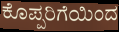
ಕೊಪ್ಪರಿಗೆಯಿಂದ